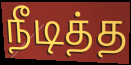
நீடித்த